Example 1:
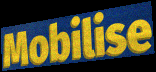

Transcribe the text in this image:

Mobilise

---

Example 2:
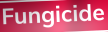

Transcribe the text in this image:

Fungicide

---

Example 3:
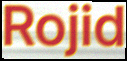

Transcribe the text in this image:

Rojid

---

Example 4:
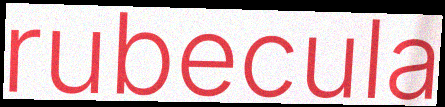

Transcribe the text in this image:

rubecula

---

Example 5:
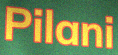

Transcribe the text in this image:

Pilani